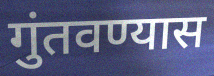
गुंतवण्यास